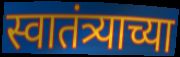
स्वातंत्र्याच्या